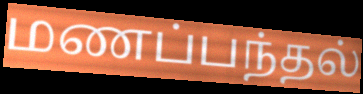
மணப்பந்தல்